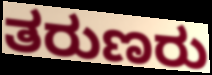
ತರುಣರು